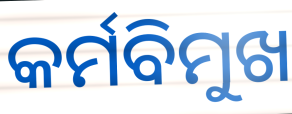
କର୍ମବିମୁଖ